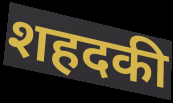
शहदकी